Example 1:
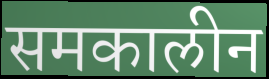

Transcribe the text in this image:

समकालीन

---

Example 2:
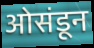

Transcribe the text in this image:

ओसंडून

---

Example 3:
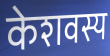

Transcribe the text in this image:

केशवस्य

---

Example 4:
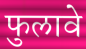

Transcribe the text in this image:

फुलावे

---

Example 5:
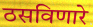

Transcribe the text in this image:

ठसविणारे